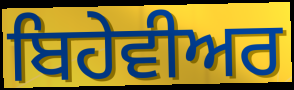
ਬਿਹੇਵੀਅਰ